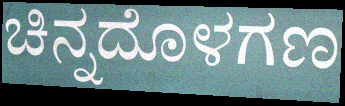
ಚಿನ್ನದೊಳಗಣ